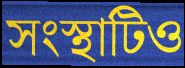
সংস্থাটিও